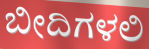
ಬೀದಿಗಳಲಿ